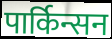
पार्किन्सन